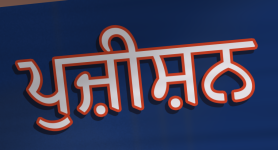
ਪੁਜ਼ੀਸ਼ਨ